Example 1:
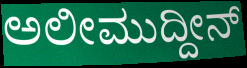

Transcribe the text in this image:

ಅಲೀಮುದ್ದೀನ್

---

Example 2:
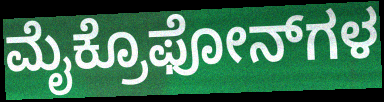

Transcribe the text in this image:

ಮೈಕ್ರೊಫೋನ್‌ಗಳ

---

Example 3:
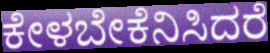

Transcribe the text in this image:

ಕೇಳಬೇಕೆನಿಸಿದರೆ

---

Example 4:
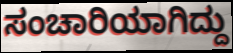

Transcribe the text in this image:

ಸಂಚಾರಿಯಾಗಿದ್ದು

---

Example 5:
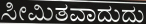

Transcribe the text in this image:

ಸೀಮಿತವಾದುದು